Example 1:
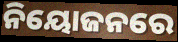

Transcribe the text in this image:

ନିୟୋଜନରେ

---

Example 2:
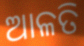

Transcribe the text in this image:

ଆଳତି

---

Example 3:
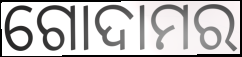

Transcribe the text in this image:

ଗୋଦାମର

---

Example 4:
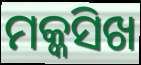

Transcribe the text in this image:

ମକ୍କସିଖ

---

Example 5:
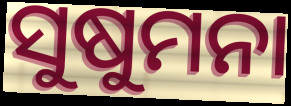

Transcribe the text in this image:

ସୁଷୁମନା